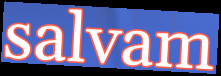
salvam